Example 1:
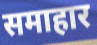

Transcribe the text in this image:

समाहार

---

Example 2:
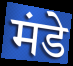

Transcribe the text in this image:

मंडे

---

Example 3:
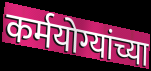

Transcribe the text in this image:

कर्मयोग्यांच्या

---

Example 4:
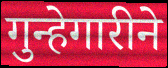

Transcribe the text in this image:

गुन्हेगारीने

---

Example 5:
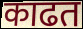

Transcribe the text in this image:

काढत